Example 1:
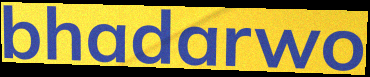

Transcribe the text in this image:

bhadarwo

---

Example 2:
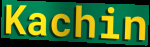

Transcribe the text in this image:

Kachin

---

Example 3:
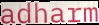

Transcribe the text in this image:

adharm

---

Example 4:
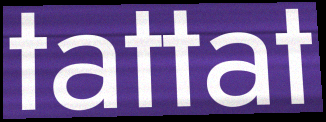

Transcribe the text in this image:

tattat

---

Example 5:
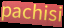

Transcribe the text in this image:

pachisi